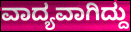
ವಾದ್ಯವಾಗಿದ್ದು